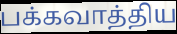
பக்கவாத்திய